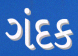
ગંદક